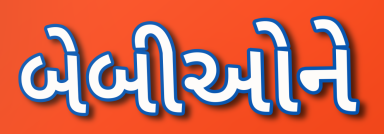
બેબીઓને